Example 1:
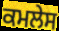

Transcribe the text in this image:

ਕਮਲੇਸ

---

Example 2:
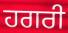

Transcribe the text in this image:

ਹਗਰੀ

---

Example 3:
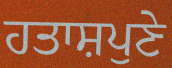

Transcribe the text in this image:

ਹਤਾਸ਼ਪੁਣੇ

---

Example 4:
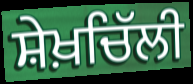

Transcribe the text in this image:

ਸ਼ੇਖ਼ਚਿੱਲੀ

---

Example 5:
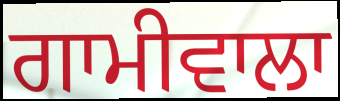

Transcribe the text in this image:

ਗਾਮੀਵਾਲਾ